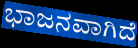
ಭಾಜನವಾಗಿದೆ